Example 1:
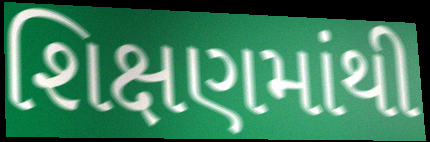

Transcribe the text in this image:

શિક્ષણમાંથી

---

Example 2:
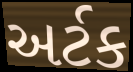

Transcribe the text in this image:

અર્ટક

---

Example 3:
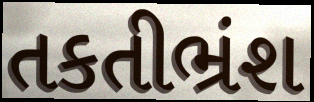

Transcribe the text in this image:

તકતીભ્રંશ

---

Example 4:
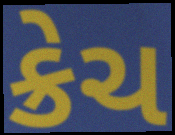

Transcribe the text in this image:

ક્રેચ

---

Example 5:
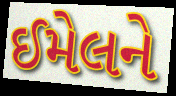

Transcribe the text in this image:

ઈમેલને